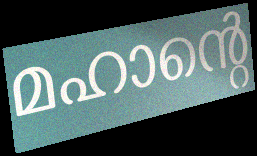
മഹാന്റെ